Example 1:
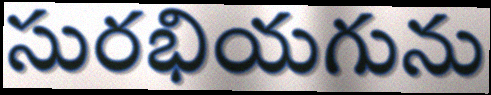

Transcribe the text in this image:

సురభియగును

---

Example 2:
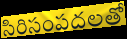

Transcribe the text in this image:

సిరిసంపదలతో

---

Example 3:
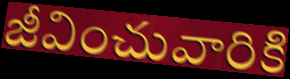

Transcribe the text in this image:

జీవించువారికి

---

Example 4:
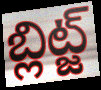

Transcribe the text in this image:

బ్లిట్జ్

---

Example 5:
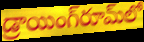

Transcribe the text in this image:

డ్రాయింగ్‌రూమ్‌లో